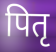
पितृ